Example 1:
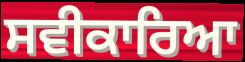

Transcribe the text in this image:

ਸਵੀਕਾਰਿਆ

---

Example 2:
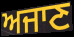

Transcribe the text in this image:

ਅਜਾਣ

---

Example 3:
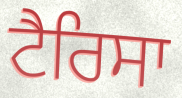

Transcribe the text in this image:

ਟੈਰਿਸਾ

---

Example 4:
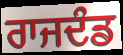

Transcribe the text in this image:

ਰਾਜਦੰਡ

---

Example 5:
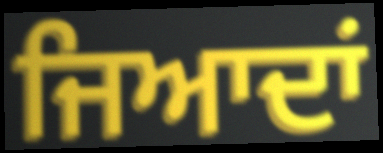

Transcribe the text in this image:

ਜਿਆਦਾਂ